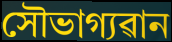
সৌভাগ্যৱান